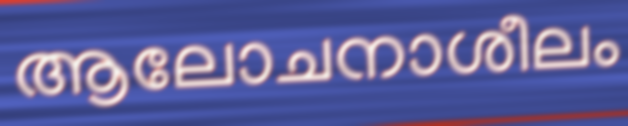
ആലോചനാശീലം